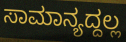
ಸಾಮಾನ್ಯದ್ದಲ್ಲ